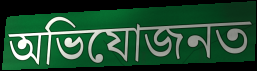
অভিযোজনত